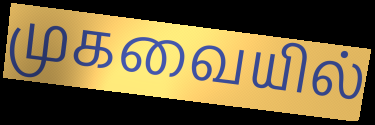
முகவையில்